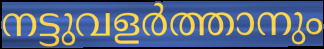
നട്ടുവളർത്താനും